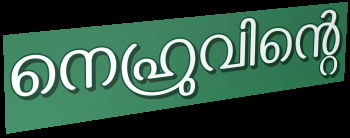
നെഹ്രുവിന്റെ